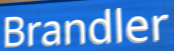
Brandler